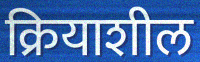
क्रियाशील